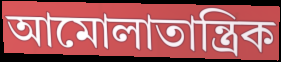
আমোলাতান্ত্ৰিক